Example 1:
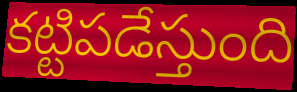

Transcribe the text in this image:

కట్టిపడేస్తుంది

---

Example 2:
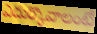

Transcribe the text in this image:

ఎదుర్కొవాలంటే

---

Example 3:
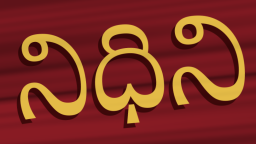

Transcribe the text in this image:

నిధిని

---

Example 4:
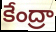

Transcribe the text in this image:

కేంద్రా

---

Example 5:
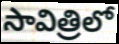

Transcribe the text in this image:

సావిత్రిలో